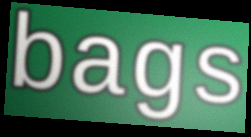
bags